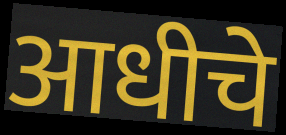
आधीचे